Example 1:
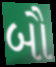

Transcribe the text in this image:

બૌ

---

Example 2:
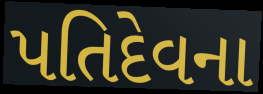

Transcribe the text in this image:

પતિદેવના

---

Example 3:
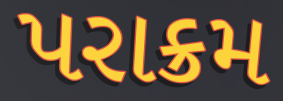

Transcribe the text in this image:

પરાક્રમ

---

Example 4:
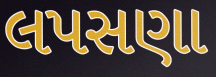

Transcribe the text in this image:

લપસણા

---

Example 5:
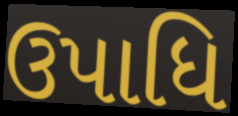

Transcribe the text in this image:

ઉપાધિ